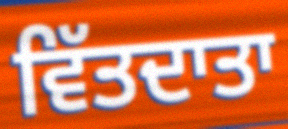
ਵਿੱਤਦਾਤਾ